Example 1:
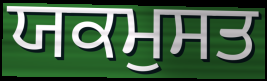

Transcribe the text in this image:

ਯਕਮੁਸਤ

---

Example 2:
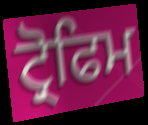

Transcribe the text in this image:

ਟ੍ਰੋਫਿਮ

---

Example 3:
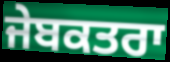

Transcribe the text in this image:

ਜੇਬਕਤਰਾ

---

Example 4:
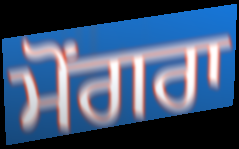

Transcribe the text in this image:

ਮੋਂਗਰਾ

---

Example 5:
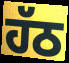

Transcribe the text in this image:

ਹੱਠ